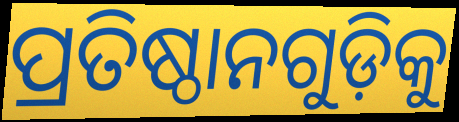
ପ୍ରତିଷ୍ଠାନଗୁଡ଼ିକୁ